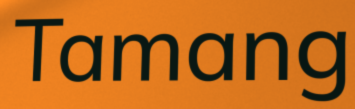
Tamang